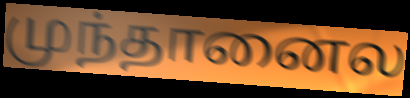
முந்தானைல